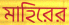
মাহিরের